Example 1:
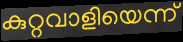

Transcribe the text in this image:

കുറ്റവാളിയെന്ന്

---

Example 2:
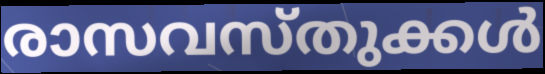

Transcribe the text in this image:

രാസവസ്തുക്കൾ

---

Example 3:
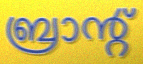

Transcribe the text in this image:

ബ്രാന്റ്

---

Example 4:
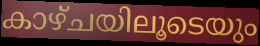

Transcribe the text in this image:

കാഴ്ചയിലൂടെയും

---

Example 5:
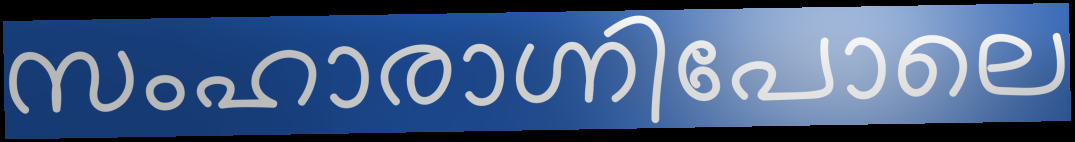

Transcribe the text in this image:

സംഹാരാഗ്നിപോലെ